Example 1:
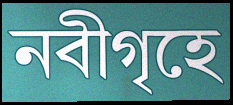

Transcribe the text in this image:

নবীগৃহে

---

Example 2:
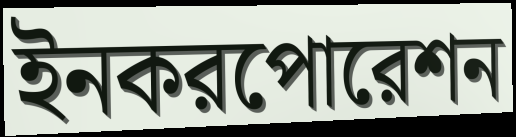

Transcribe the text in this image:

ইনকরপোরেশন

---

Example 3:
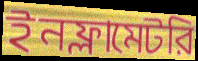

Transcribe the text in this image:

ইনফ্লামেটরি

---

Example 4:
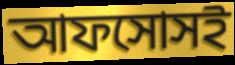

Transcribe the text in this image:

আফসোসই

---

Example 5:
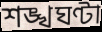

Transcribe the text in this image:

শঙ্খঘণ্টা